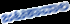
ಜಟಕಾವಾಲ